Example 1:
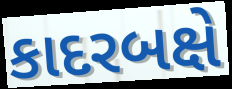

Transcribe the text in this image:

કાદરબક્ષે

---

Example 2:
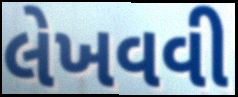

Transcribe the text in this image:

લેખવવી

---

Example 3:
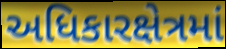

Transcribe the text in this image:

અધિકારક્ષેત્રમાં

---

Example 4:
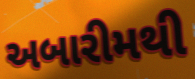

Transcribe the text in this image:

અબારીમથી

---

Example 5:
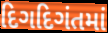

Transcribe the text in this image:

દિગદિગંતમાં